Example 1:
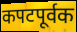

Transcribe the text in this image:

कपटपूर्वक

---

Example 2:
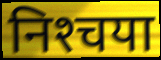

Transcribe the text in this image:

निश्चया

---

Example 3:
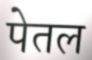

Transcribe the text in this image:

पेतल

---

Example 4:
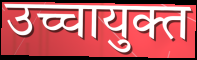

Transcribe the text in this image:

उच्‍चायुक्‍त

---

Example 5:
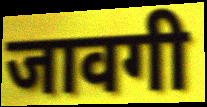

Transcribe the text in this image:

जावगी